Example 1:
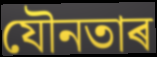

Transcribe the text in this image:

যৌনতাৰ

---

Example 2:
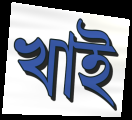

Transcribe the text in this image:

খাই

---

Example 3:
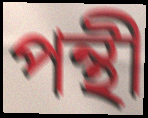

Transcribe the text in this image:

পন্থী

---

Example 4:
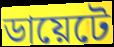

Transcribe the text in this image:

ডায়েটে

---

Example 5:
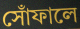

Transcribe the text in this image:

সোঁফালে